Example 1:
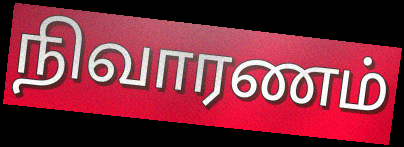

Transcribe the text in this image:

நிவாரணம்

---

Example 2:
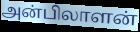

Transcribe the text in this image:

அன்பிலாளன்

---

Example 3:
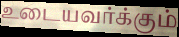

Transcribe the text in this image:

உடையவர்க்கும்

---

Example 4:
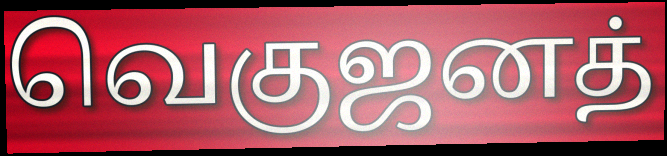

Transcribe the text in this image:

வெகுஜனத்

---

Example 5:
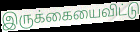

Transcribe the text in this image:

இருக்கையைவிட்டு